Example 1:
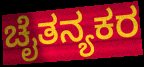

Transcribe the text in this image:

ಚೈತನ್ಯಕರ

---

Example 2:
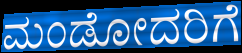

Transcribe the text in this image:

ಮಂಡೋದರಿಗೆ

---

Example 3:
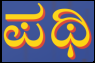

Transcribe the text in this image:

ಪಥಿ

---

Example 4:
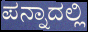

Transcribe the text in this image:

ಪನ್ನಾದಲ್ಲಿ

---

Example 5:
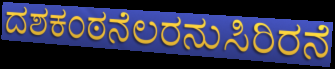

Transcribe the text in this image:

ದಶಕಂಠನೆಲರನುಸಿರಿರನೆ